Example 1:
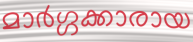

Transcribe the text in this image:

മാർഗ്ഗക്കാരായ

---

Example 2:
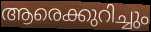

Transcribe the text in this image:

ആരെക്കുറിച്ചും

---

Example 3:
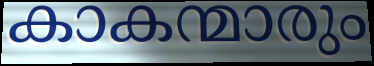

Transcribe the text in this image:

കാകന്മാരും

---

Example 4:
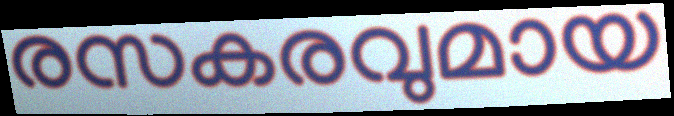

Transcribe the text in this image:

രസകരവുമായ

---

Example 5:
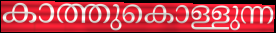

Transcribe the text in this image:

കാത്തുകൊള്ളുന്ന